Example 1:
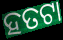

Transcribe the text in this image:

ହତଟା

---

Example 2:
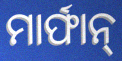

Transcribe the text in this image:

ମାର୍ଫାନ୍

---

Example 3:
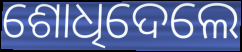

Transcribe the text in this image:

ଶୋଧିଦେଲେ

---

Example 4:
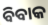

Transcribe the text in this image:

ବିବାକ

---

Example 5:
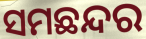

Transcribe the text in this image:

ସମଛନ୍ଦର